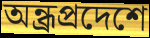
অন্ধ্রপ্রদেশে